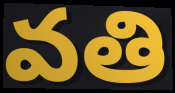
వతి